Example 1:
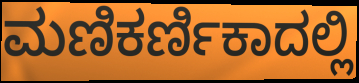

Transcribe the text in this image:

ಮಣಿಕರ್ಣಿಕಾದಲ್ಲಿ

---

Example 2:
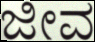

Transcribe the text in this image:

ಜೀವ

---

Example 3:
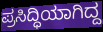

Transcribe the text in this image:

ಪ್ರಸಿದ್ಧಿಯಾಗಿದ್ದ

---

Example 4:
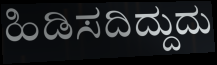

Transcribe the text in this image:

ಹಿಡಿಸದಿದ್ದುದು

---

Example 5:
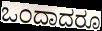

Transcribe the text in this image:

ಒಂದಾದರೂ